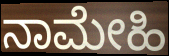
ನಾಮೇಹಿ